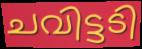
ചവിട്ടടി